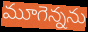
మూగెన్నను